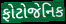
ફોટોજેનિક